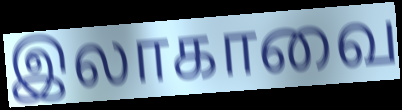
இலாகாவை